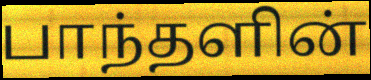
பாந்தளின்